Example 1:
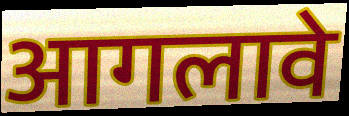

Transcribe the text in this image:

आगलावे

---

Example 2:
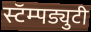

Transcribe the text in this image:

स्टॅम्पड्युटी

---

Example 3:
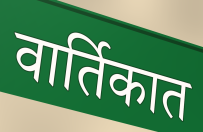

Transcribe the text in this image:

वार्तिकात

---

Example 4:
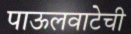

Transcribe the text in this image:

पाऊलवाटेची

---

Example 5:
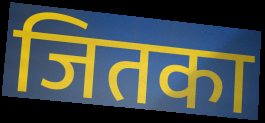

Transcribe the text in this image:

जितका